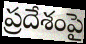
ప్రదేశంపై